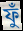
ফুঁ